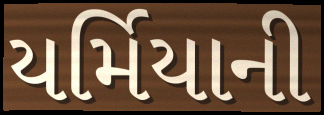
યર્મિયાની